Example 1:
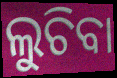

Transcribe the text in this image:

ଲୁଚିବା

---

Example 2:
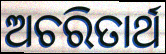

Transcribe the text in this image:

ଅଚରିତାର୍ଥ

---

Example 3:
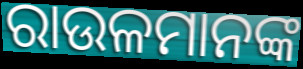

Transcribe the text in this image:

ରାଉଳମାନଙ୍କ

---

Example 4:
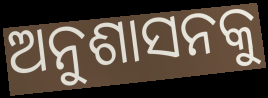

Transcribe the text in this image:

ଅନୁଶାସନକୁ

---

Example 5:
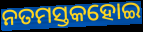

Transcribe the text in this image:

ନତମସ୍ତକହୋଇ